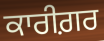
ਕਾਰੀਗ਼ਰ